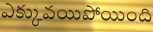
ఎక్కువయిపోయింది